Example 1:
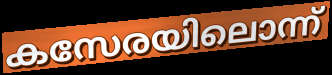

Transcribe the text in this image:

കസേരയിലൊന്ന്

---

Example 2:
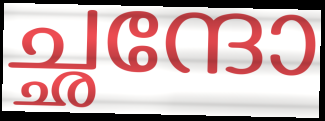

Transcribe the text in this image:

ച്ഛന്ദോ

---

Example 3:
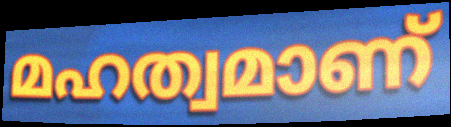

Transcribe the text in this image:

മഹത്വമാണ്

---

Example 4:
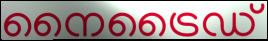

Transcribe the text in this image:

നൈട്രൈഡ്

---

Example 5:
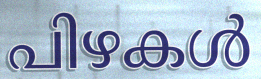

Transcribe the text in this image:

പിഴകൾ